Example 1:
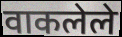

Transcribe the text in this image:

वाकलेले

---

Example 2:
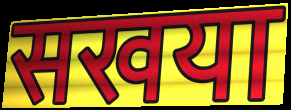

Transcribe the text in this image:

सखया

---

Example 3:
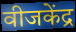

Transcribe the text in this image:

वीजकेंद्र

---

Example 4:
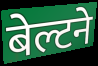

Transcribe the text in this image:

बेल्टने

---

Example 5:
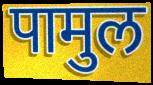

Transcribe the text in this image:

पामुल